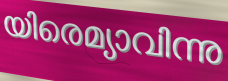
യിരെമ്യാവിന്നു